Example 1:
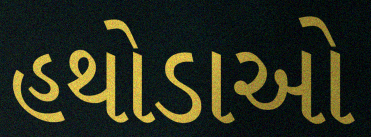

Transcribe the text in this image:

હથોડાઓ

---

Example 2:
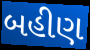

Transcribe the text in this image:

બહીણ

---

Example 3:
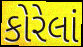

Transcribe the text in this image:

કોરેલાં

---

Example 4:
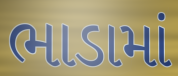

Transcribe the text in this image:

ભાડામાં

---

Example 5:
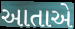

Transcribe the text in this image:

આતાએ